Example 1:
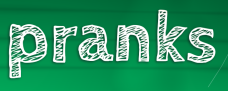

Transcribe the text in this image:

pranks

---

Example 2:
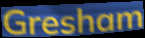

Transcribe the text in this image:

Gresham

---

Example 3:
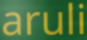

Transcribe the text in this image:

aruli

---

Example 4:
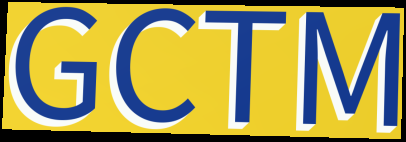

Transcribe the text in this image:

GCTM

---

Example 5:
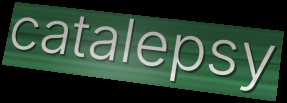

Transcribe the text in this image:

catalepsy